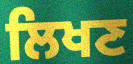
ਲਿਖਣ